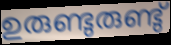
ഉരുണ്ടുരുണ്ടു്